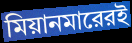
মিয়ানমারেরই